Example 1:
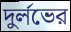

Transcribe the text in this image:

দুর্লভের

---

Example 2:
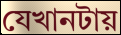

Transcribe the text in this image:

যেখানটায়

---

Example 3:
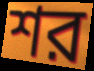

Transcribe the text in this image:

শর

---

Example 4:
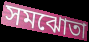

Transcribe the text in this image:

সমঝোতা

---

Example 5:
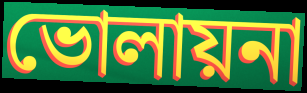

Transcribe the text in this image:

ভোলায়না